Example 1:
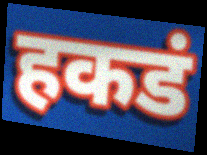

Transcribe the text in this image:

हकडं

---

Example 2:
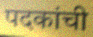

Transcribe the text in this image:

पदकांची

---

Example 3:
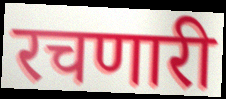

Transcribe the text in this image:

रचणारी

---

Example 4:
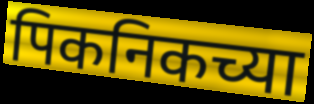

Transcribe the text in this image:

पिकनिकच्या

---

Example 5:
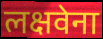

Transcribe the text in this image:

लक्षवेना